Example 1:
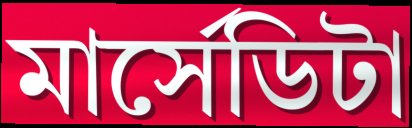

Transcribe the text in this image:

মার্সেডিটা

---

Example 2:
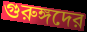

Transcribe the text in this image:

গুরুঙ্গদের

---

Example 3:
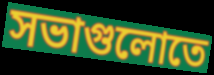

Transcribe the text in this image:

সভাগুলোতে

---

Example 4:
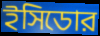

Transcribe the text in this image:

ইসিডোর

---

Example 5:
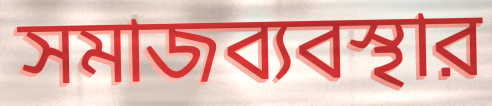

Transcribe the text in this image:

সমাজব্যবস্থার